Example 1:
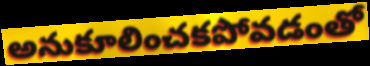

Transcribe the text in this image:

అనుకూలించకపోవడంతో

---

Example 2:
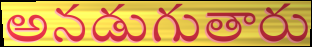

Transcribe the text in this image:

అనడుగుతారు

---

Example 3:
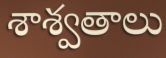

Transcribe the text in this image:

శాశ్వతాలు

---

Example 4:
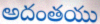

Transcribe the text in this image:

అదంతయు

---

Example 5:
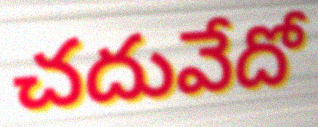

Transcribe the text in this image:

చదువేదో